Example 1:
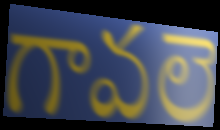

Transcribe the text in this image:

గావలె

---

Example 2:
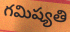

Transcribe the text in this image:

గమిష్యతి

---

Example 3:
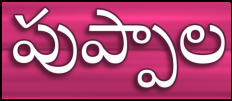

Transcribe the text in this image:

పుప్పాల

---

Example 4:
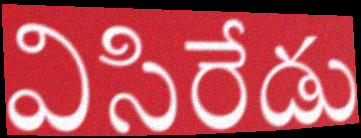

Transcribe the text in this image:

విసిరేడు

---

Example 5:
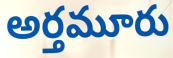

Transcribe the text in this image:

అర్తమూరు